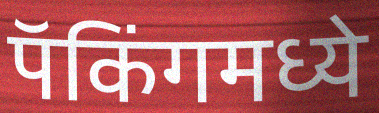
पॅकिंगमध्ये